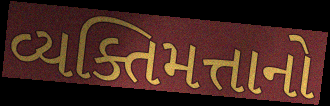
વ્યક્તિમત્તાનો